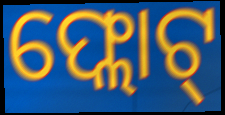
ଫ୍ଲୋଟ୍